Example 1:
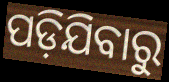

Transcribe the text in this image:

ପଡ଼ିଯିବାରୁ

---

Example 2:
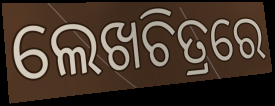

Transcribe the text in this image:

ଲେଖଚିତ୍ରରେ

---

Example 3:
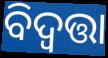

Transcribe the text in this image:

ବିଦ୍ୱତ୍ତା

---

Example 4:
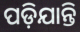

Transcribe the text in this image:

ପଡ଼ିଯାନ୍ତି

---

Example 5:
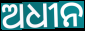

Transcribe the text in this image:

ଅଧୀନ